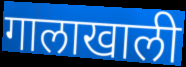
गालाखाली